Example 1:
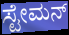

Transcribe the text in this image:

ಸ್ಟೇಮನ್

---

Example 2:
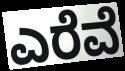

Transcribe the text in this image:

ಎರೆವೆ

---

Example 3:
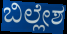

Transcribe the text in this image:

ಬಿಲ್ಲೇಶ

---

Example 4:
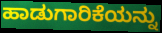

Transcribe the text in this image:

ಹಾಡುಗಾರಿಕೆಯನ್ನು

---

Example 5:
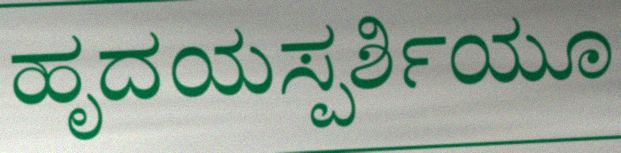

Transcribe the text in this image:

ಹೃದಯಸ್ಪರ್ಶಿಯೂ